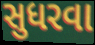
સુધરવા